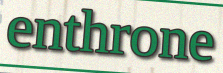
enthrone